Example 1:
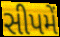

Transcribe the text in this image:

સીપમેં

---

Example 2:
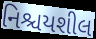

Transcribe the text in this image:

નિશ્ચયશીલ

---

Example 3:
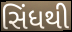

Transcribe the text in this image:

સિંધથી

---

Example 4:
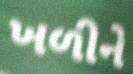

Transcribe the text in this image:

ખળીને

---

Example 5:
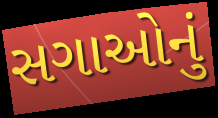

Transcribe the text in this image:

સગાઓનું